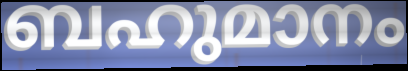
ബഹുമാനം